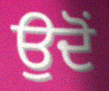
ਉਦੋੰ